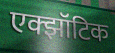
एक्झॉटिक